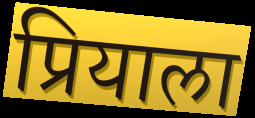
प्रियाला